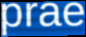
prae